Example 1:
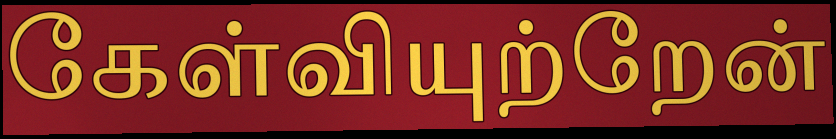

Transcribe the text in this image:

கேள்வியுற்றேன்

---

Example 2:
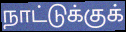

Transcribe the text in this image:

நாட்டுக்குக்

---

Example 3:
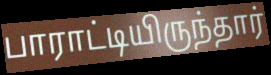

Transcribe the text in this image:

பாராட்டியிருந்தார்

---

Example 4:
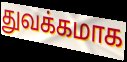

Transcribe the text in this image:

துவக்கமாக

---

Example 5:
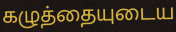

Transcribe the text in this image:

கழுத்தையுடைய